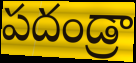
పదండ్రా